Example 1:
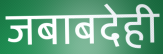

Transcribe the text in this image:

जबाबदेही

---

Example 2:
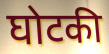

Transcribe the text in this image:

घोटकी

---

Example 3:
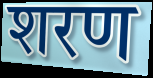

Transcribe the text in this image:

शरण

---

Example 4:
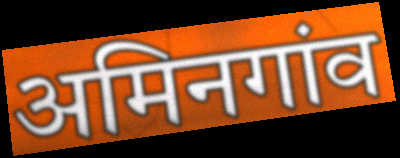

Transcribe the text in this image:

अमिनगांव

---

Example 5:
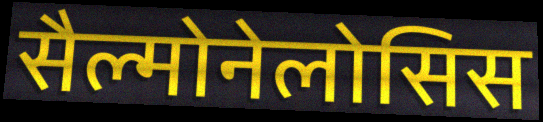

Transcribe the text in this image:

सैल्मोनेलोसिस